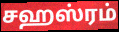
சஹஸ்ரம்